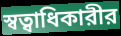
স্বত্বাধিকারীর